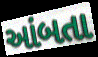
આંબતા